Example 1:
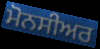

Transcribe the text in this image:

ਮੋਨਸੀਅਰ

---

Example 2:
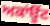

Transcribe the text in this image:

ਅਕਾਂਊਂਟ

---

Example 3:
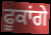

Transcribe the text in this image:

ਫੂਕਾਂਗੇ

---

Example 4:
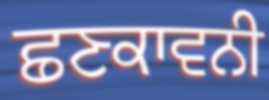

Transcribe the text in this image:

ਛਣਕਾਵਨੀ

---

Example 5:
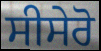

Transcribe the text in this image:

ਸੀਸੇਰੋ